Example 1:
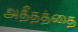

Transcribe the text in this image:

அதீதத்தை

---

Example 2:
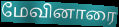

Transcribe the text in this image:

மேவினாரை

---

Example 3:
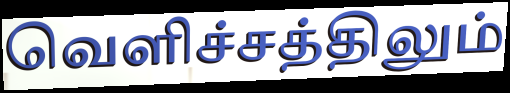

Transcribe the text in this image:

வெளிச்சத்திலும்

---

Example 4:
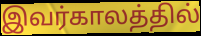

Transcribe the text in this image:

இவர்காலத்தில்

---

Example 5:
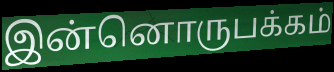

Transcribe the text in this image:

இன்னொருபக்கம்